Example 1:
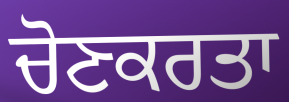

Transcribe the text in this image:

ਚੋਣਕਰਤਾ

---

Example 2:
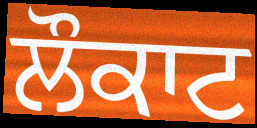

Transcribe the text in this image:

ਲੌਕਾਟ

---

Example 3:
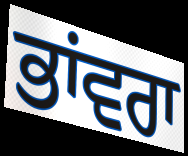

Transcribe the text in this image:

ਭਾਂਵਰਾ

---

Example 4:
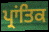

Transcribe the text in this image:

ਪ੍ਰਾਂਤਿਕ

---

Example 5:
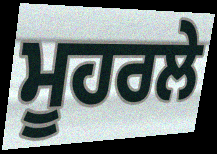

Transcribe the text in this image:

ਮੂਹਰਲੇ